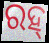
ରହ୍